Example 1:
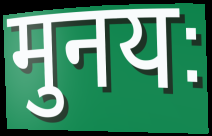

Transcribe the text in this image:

मुनयः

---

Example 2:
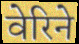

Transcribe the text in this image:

वेरिने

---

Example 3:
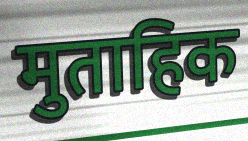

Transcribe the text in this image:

मुताहिक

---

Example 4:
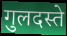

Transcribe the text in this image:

गुलदस्ते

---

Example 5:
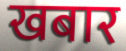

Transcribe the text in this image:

खबार